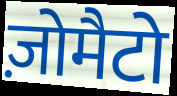
ज़ोमैटो